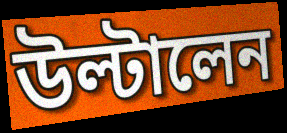
উল্টালেন